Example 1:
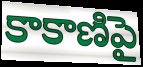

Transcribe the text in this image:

కాకాణిపై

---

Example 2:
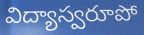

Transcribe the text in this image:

విద్యాస్వరూపో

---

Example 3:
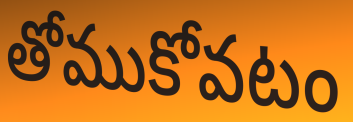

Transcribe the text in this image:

తోముకోవటం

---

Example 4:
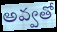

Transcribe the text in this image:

అవ్వతో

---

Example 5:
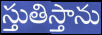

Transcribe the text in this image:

స్తుతిస్తాను